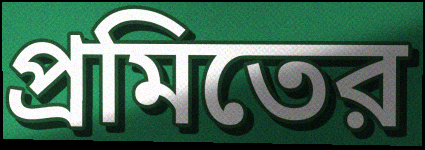
প্রমিতের